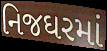
નિજઘરમાં